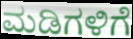
ಮಡಿಗಳಿಗೆ